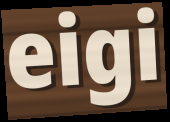
eigi